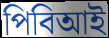
পিবিআই